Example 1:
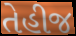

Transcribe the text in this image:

તેહીજ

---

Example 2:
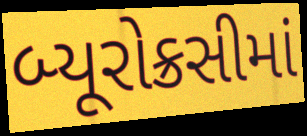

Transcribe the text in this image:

બ્યૂરોક્રસીમાં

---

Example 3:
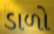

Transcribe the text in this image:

ડાળો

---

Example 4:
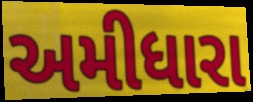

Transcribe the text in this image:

અમીધારા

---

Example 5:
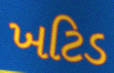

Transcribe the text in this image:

ખટિડ